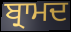
ਬ੍ਰਾਮਦ